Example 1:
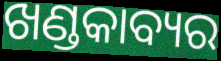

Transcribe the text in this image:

ଖଣ୍ଡକାବ୍ୟର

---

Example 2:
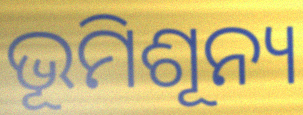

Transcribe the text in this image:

ଭୂମିଶୂନ୍ୟ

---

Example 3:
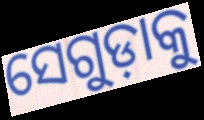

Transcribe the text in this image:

ସେଗୁଡ଼ାକୁ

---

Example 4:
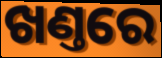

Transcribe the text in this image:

ଖଣ୍ତରେ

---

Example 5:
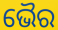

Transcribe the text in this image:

ଭୈର